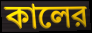
কালের